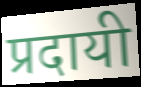
प्रदायी